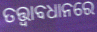
ତତ୍ତ୍ବାବଧାନରେ